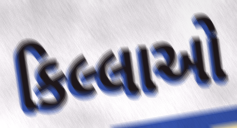
કિલ્લાઓ